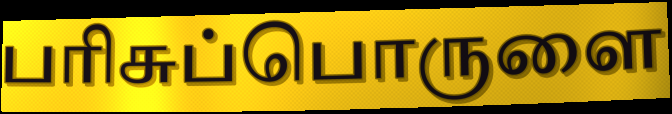
பரிசுப்பொருளை